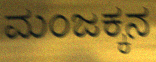
ಮಂಜಕ್ಕನ